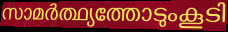
സാമർത്ഥ്യത്തോടുംകൂടി